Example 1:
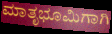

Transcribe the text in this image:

ಮಾತೃಭೂಮಿಗಾಗಿ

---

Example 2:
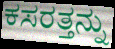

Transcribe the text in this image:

ಕಸರತ್ತನ್ನು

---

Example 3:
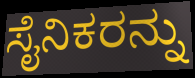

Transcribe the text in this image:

ಸೈನಿಕರನ್ನು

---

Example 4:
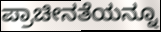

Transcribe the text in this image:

ಪ್ರಾಚೀನತೆಯನ್ನೂ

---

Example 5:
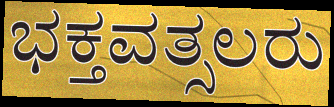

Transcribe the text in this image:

ಭಕ್ತವತ್ಸಲರು